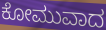
ಕೋಮುವಾದ